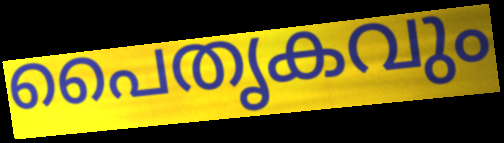
പൈതൃകവും